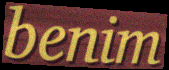
benim